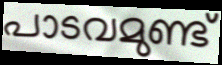
പാടവമുണ്ട്